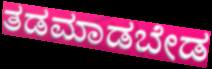
ತಡಮಾಡಬೇಡ